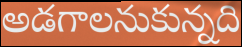
అడగాలనుకున్నది